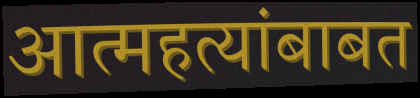
आत्महत्यांबाबत